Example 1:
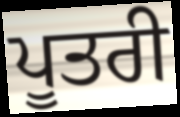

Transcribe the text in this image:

ਪੂਤਰੀ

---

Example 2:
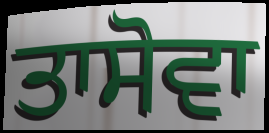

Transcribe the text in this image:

ਤਾਸੋਵਾ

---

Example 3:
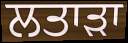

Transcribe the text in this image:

ਲਤਾੜਾ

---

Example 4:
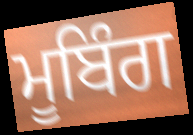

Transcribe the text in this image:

ਮੂਬਿੰਗ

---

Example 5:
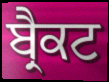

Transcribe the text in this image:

ਬ੍ਰੈਕਟ